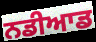
ਨਡੀਆਡ